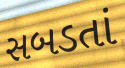
સબડતાં